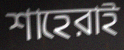
শাহেরাই